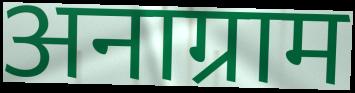
अनाग्राम